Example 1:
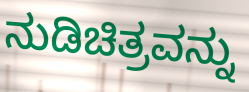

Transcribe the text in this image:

ನುಡಿಚಿತ್ರವನ್ನು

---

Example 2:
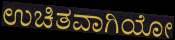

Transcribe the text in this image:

ಉಚಿತವಾಗಿಯೋ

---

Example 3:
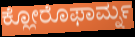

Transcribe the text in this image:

ಕ್ಲೋರೊಫಾರ್ಮ್ನ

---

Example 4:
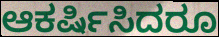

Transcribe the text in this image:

ಆಕರ್ಷಿಸಿದರೂ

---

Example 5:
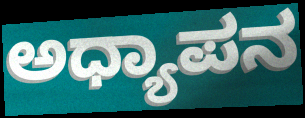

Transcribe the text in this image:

ಅಧ್ಯಾಪನ